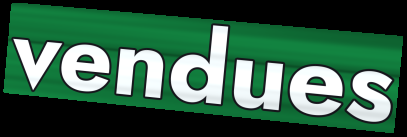
vendues